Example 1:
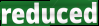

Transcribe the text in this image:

reduced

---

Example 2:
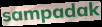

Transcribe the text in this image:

sampadak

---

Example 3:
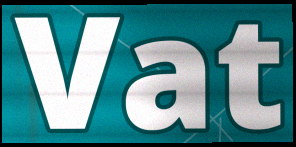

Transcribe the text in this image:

Vat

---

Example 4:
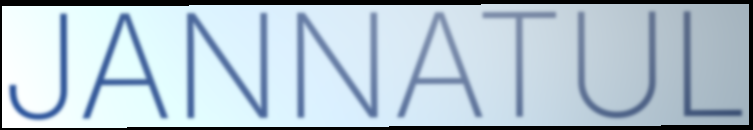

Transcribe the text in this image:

JANNATUL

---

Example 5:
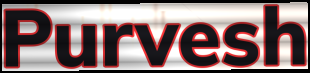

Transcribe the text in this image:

Purvesh